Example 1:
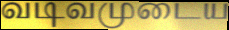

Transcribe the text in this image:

வடிவமுடைய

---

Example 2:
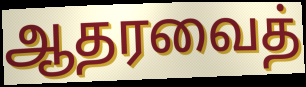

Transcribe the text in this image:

ஆதரவைத்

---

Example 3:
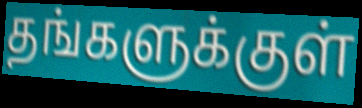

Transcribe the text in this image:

தங்களுக்குள்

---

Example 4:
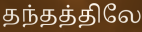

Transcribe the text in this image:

தந்தத்திலே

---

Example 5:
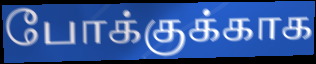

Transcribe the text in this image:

போக்குக்காக